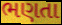
ભણતા